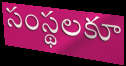
సంస్థలకూ